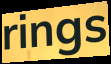
rings